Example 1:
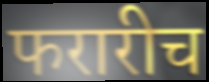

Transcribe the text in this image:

फरारीच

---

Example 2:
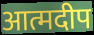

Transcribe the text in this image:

आत्मदीप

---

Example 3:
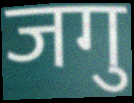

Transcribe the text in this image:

जगु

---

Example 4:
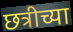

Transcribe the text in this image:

छत्रीच्या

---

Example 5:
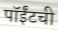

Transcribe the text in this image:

पॉईंटची